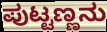
ಪುಟ್ಟಣ್ಣನು